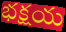
భక్షయ